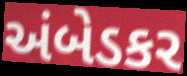
અંબેડકર